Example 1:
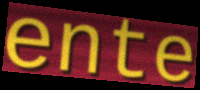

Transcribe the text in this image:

ente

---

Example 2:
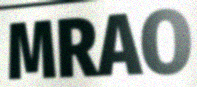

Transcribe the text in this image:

MRAO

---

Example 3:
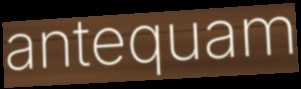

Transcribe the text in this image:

antequam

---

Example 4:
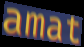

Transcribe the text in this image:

amat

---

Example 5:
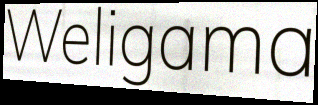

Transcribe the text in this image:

Weligama